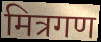
मित्रगण